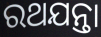
ରଥଯନ୍ତା